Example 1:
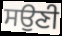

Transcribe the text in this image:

ਸਉਣੀ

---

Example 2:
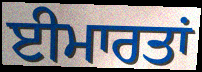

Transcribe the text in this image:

ਈਮਾਰਤਾਂ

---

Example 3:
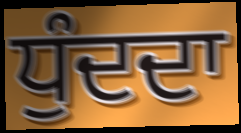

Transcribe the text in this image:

ਧੁੰਦਦਾ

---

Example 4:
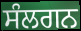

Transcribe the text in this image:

ਸੰਲਗਨ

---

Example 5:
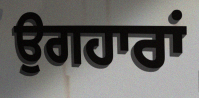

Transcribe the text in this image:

ਉਗਹਾਰਾਂ